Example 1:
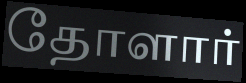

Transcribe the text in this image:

தோளார்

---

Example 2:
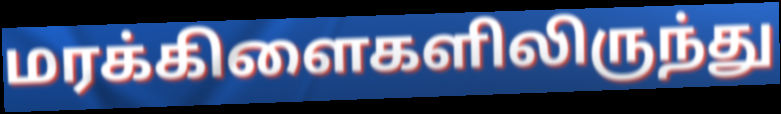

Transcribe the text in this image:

மரக்கிளைகளிலிருந்து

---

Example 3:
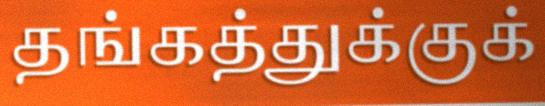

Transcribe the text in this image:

தங்கத்துக்குக்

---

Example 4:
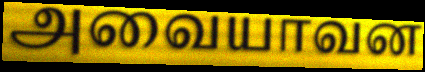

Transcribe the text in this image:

அவையாவன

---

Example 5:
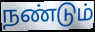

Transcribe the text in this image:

நண்டும்